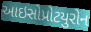
આઇસોપ્રોટયુરોન